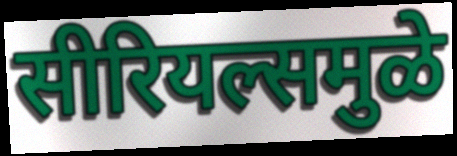
सीरियल्समुळे